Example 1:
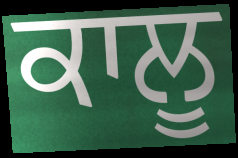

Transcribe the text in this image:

ਕਾਲੂ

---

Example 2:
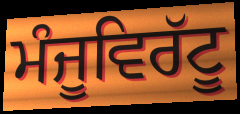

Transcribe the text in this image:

ਮੰਜੂਵਿਰੱਟੂ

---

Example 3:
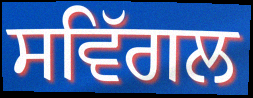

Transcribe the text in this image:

ਸਵਿੱਗਲ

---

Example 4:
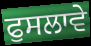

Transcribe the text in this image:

ਫੁਸਲਾਵੇ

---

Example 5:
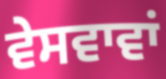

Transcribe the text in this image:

ਵੇਸਵਾਵਾਂ